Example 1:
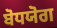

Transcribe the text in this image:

ਬੋਧਯੋਗ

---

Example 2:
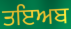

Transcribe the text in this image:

ਤਇਅਬ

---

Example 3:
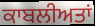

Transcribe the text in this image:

ਕਾਬਲੀਅਤਾਂ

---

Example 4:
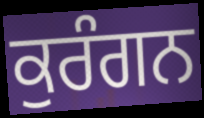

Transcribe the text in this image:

ਕੁਰੰਗਨ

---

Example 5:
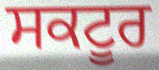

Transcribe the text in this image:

ਸਕਟੂਰ